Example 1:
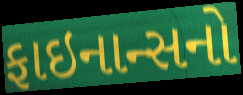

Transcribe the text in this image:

ફાઇનાન્સનો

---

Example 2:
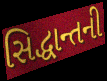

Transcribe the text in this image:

સિદ્ધાન્તની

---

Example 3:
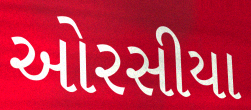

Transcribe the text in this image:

ઓરસીયા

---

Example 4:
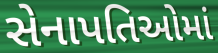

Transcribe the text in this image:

સેનાપતિઓમાં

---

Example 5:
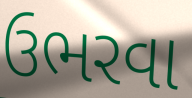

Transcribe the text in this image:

ઉભરવા